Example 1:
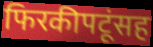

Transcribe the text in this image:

फिरकीपटूंसह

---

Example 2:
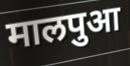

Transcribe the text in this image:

मालपुआ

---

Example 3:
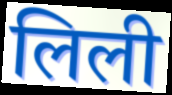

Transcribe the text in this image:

लिली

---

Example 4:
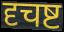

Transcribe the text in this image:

दृचष्ट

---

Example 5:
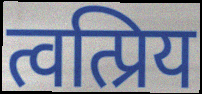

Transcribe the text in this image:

त्वत्प्रिय